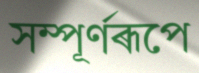
সম্পূৰ্ণৰূপে